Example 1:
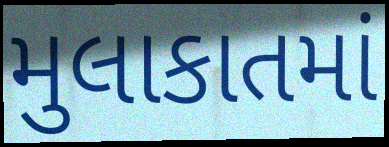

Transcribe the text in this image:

મુલાકાતમાં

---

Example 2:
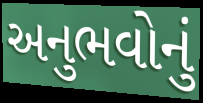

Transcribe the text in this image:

અનુભવોનું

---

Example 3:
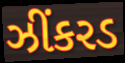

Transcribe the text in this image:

ઝીંકરડ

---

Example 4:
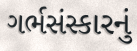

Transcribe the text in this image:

ગર્ભસંસ્કારનું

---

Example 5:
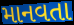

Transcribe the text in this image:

માનવતા